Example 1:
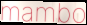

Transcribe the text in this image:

mambo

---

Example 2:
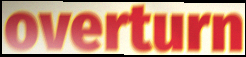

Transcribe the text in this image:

overturn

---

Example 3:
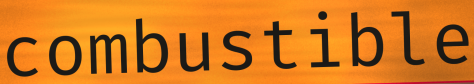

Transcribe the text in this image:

combustible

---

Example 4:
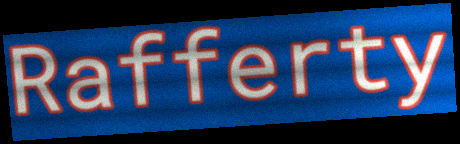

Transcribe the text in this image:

Rafferty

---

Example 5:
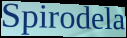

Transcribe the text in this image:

Spirodela